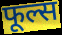
फूल्स